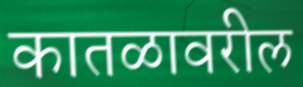
कातळावरील